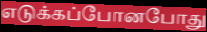
எடுக்கப்போனபோது